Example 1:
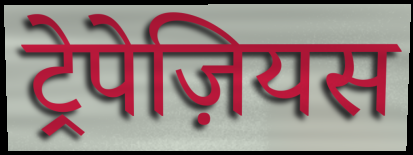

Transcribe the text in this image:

ट्रेपेज़ियस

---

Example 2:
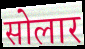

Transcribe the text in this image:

सोलार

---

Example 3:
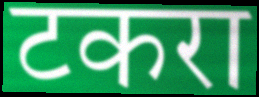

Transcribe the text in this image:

टकरा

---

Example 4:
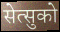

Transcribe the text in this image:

सेत्सुको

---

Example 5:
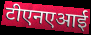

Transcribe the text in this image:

टीएनएआई